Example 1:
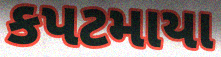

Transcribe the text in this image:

કપટમાયા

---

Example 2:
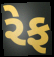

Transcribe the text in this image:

રેફ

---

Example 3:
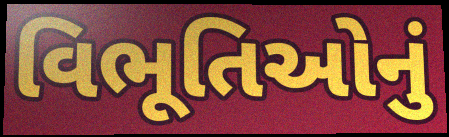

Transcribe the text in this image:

વિભૂતિઓનું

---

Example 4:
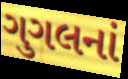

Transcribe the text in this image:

ગુગલનાં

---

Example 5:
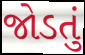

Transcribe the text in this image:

જોડતું